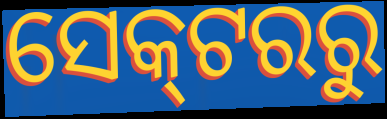
ସେକ୍‌ଟରରୁ